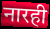
नारही